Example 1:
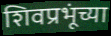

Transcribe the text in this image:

शिवप्रभूंच्या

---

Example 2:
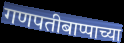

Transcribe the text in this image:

गणपतीबाप्पाच्या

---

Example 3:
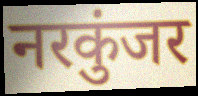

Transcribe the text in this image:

नरकुंजर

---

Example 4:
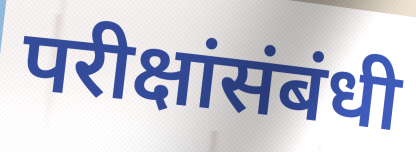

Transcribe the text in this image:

परीक्षांसंबंधी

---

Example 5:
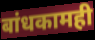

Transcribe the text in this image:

बांधकामही